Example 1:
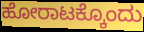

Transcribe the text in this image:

ಹೋರಾಟಕ್ಕೊಂದು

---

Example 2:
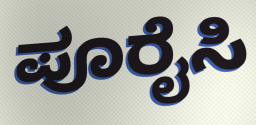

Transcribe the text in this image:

ಪೂರೈಸಿ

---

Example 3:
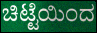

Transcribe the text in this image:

ಚಿಟ್ಟೆಯಿಂದ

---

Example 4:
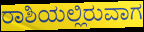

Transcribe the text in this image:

ರಾಶಿಯಲ್ಲಿರುವಾಗ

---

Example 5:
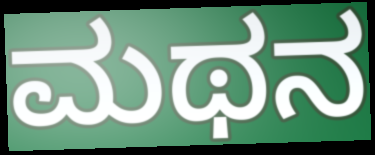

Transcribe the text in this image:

ಮಥನ